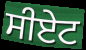
ਸੀਏਟ